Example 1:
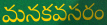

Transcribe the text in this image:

మనకవసరం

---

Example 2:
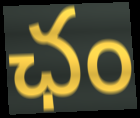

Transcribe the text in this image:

ఛం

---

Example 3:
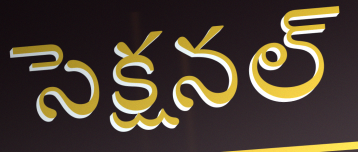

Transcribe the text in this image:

సెక్షనల్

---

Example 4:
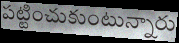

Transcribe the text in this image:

పట్టించుకుంటున్నారు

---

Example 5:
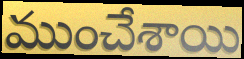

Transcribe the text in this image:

ముంచేశాయి